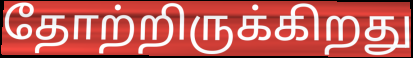
தோற்றிருக்கிறது